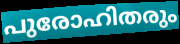
പുരോഹിതരും